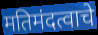
मतिमंदत्वाचे